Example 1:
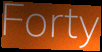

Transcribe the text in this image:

Forty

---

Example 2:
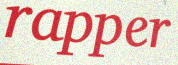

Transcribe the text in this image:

rapper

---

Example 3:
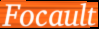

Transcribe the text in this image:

Focault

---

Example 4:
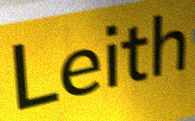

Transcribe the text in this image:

Leith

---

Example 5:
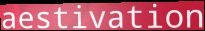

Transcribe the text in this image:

aestivation